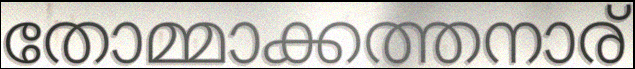
തോമ്മാക്കത്തനാര്